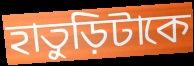
হাতুড়িটাকে